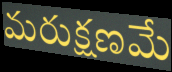
మరుక్షణమే